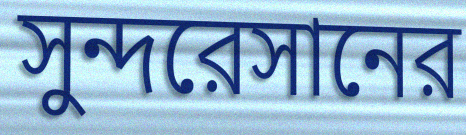
সুন্দরেসানের